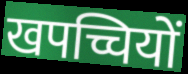
खपच्चियों